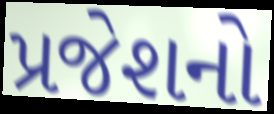
પ્રજેશનો